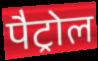
पैट्रोल